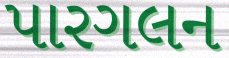
પારગલન